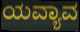
ಯವ್ಯಾವ